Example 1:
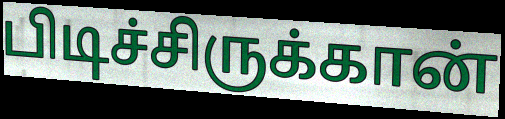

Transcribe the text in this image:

பிடிச்சிருக்கான்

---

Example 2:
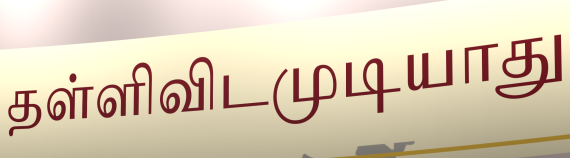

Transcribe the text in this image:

தள்ளிவிடமுடியாது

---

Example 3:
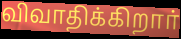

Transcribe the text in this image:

விவாதிக்கிறார்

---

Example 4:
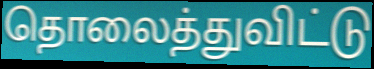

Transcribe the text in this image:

தொலைத்துவிட்டு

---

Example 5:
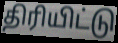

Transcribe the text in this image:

திரியிட்டு